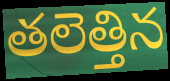
తలెత్తిన